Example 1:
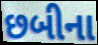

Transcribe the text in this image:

છબીના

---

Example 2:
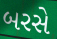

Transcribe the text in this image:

બરસે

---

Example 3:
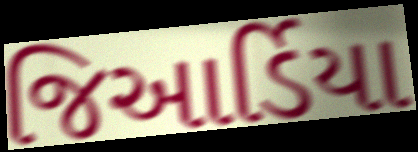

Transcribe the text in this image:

જિઆર્ડિયા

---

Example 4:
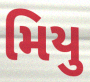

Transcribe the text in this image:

મિયુ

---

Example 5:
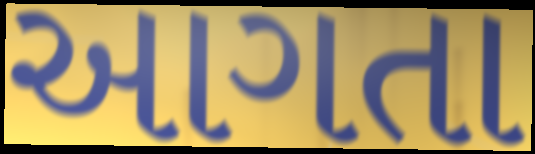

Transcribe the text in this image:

આગતા